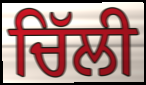
ਚਿੱਲੀ